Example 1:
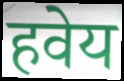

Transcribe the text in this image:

हवेय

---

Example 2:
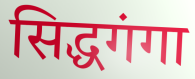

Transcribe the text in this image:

सिद्धगंगा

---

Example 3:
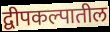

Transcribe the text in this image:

द्वीपकल्पातील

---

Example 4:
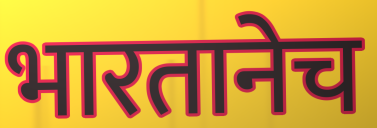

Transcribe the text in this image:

भारतानेच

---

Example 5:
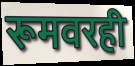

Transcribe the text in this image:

रूमवरही